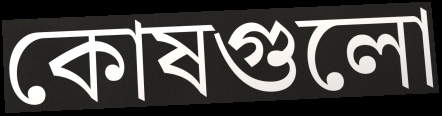
কোষগুলো